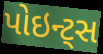
પોઇન્ટ્સ